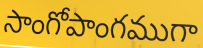
సాంగోపాంగముగా